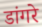
डांगरे